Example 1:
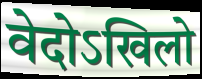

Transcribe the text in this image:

वेदोऽखिलो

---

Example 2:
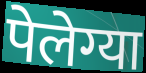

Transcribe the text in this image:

पेलेग्या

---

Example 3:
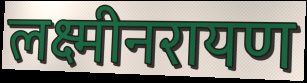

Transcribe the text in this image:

लक्ष्मीनरायण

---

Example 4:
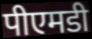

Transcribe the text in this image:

पीएमडी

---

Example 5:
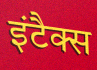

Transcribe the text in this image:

इंटैक्स